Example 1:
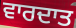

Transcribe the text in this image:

ਵਾਰਦਾਤ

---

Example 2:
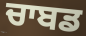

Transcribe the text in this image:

ਚਾਬਡ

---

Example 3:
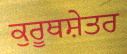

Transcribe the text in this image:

ਕੁਰੂਥਸ਼ੇਤਰ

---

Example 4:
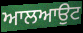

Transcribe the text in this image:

ਆਲਆਉਟ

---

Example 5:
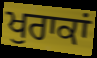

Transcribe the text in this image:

ਖੁਰਾਕਾਂ